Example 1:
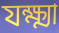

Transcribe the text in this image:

যক্ষ্মা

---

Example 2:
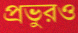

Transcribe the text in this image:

প্রভুরও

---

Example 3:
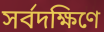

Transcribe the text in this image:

সর্বদক্ষিণে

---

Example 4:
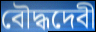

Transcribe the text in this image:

বৌদ্ধদেবী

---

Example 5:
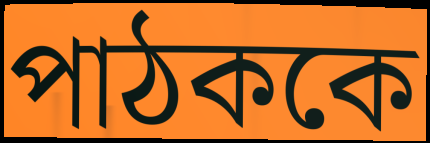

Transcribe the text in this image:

পাঠককে